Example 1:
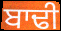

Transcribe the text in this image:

ਬਾਢੀ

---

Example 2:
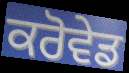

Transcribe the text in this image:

ਕਰੋਵੇਡ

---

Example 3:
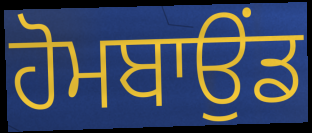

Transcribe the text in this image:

ਹੋਮਬਾਉਂਡ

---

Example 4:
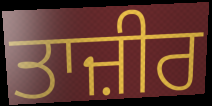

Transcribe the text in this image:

ਤਾਜ਼ੀਰ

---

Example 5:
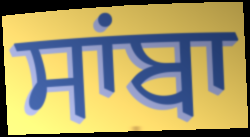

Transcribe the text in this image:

ਸਾਂਬਾ